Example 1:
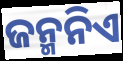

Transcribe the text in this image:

ଜନ୍ମନିଏ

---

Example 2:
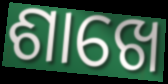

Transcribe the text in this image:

ଶାଖେ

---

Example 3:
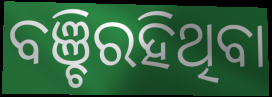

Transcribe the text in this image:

ବଞ୍ଚିରହିଥିବା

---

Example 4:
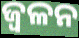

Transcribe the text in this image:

ଜ୍ୱଳନ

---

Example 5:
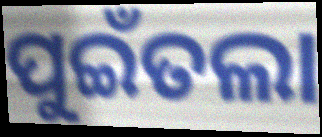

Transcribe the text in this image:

ପୁଇଁତଲା